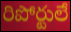
రిపోర్టులే